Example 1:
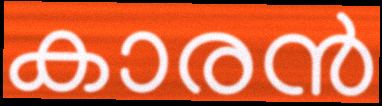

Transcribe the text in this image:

കാരൻ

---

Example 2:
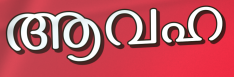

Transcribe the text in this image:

ആവഹ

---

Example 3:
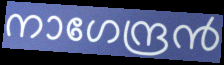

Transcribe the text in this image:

നാഗേന്ദ്രൻ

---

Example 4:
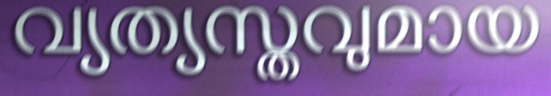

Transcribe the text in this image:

വ്യത്യസ്തവുമായ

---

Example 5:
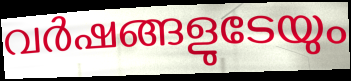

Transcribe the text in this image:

വർഷങ്ങളുടേയും